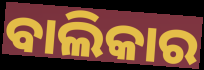
ବାଲିକାର